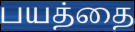
பயத்தை